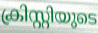
ക്രിസ്റ്റിയുടെ